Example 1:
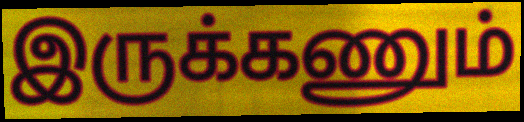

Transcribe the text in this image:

இருக்கணும்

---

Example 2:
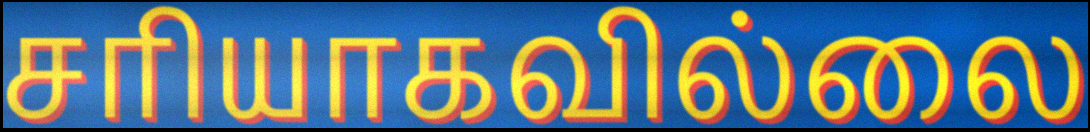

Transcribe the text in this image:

சரியாகவில்லை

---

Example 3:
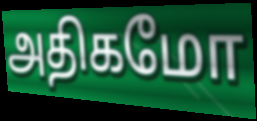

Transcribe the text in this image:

அதிகமோ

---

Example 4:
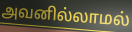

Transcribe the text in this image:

அவனில்லாமல்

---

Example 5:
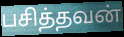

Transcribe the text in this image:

பசித்தவன்